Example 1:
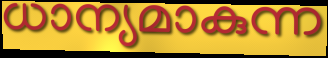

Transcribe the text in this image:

ധാന്യമാകുന്ന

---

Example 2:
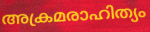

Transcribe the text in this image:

അക്രമരാഹിത്യം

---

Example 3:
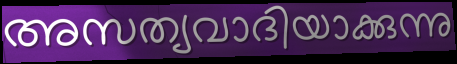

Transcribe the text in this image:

അസത്യവാദിയാക്കുന്നു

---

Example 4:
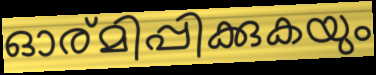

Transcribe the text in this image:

ഓര്മിപ്പിക്കുകയും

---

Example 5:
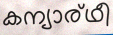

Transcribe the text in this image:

കന്യാര്ഥീ